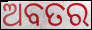
ଅବତର